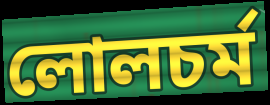
লোলচর্ম